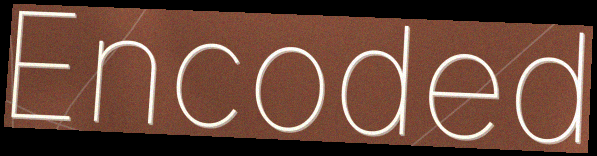
Encoded